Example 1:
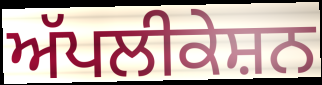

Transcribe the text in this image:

ਅੱਪਲੀਕੇਸ਼ਨ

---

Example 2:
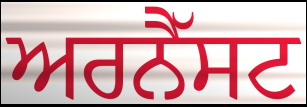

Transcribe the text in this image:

ਅਰਨੈੱਸਟ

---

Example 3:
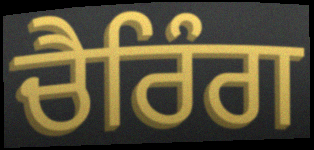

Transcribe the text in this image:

ਚੈਰਿੰਗ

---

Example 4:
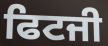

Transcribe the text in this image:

ਫਿਟਜੀ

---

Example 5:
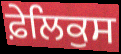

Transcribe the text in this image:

ਫ਼ੇਲਿਕੁਸ